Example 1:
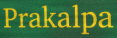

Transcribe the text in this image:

Prakalpa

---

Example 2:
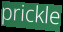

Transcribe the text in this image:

prickle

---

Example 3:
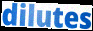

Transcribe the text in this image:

dilutes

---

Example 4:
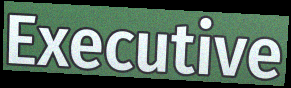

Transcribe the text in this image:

Executive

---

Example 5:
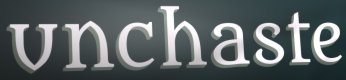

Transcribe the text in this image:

unchaste